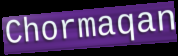
Chormaqan